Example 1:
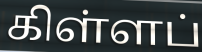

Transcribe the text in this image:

கிள்ளப்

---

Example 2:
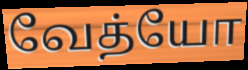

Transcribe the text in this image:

வேத்யோ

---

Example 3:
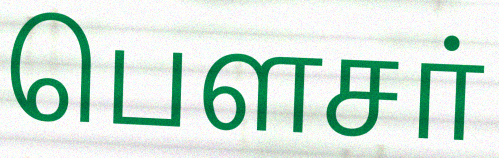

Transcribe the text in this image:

பௌசர்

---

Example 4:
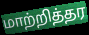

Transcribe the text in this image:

மாற்றித்தர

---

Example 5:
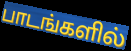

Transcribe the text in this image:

பாடங்களில்